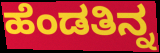
ಹೆಂಡತಿನ್ನ